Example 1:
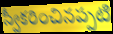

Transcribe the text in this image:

స్వీకరించినప్పటి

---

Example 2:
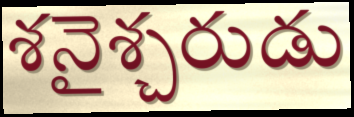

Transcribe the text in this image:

శనైశ్చరుడు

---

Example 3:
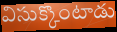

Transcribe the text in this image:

విసుక్కొంటాడు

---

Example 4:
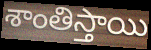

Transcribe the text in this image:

శాంతిస్తాయి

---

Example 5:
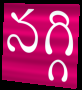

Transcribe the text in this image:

నగ్గి